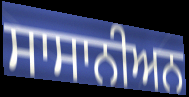
ਸਾਸਾਨੀਅਨ